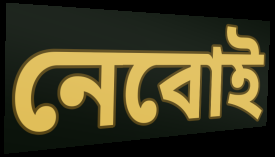
নেবোই